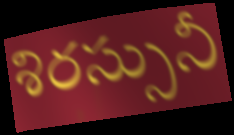
శిరస్సునీ